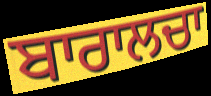
ਬਾਰਾਲਚਾ